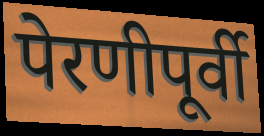
पेरणीपूर्वी